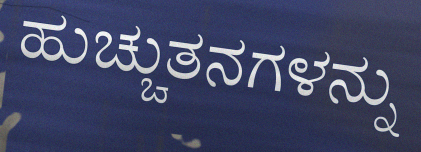
ಹುಚ್ಚುತನಗಳನ್ನು